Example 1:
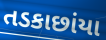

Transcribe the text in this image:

તડકાછાંયા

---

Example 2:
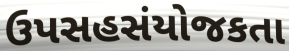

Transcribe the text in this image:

ઉપસહસંયોજકતા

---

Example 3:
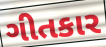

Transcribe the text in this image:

ગીતકાર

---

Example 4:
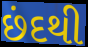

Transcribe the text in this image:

છંદથી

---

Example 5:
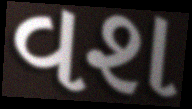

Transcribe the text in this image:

વશ